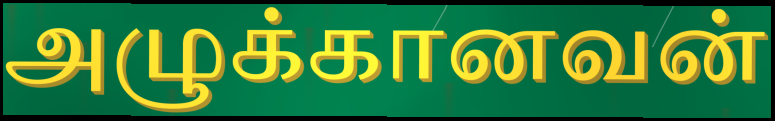
அழுக்கானவன்